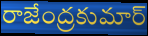
రాజేంద్రకుమార్